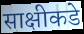
साक्षीकडे